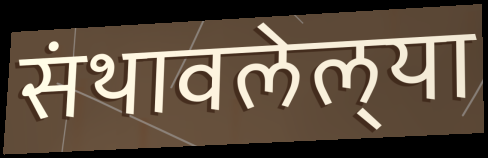
संथावलेल्या